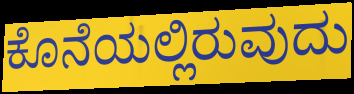
ಕೊನೆಯಲ್ಲಿರುವುದು